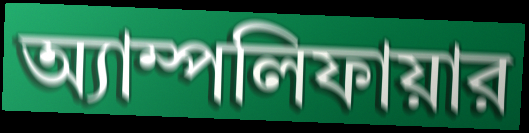
অ্যাম্পলিফায়ার